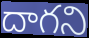
దాగని